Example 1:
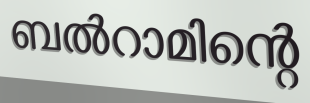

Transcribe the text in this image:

ബൽറാമിന്റെ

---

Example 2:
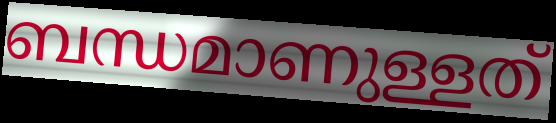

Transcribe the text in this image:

ബന്ധമാണുള്ളത്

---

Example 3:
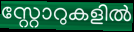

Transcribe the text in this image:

സ്റ്റോറുകളിൽ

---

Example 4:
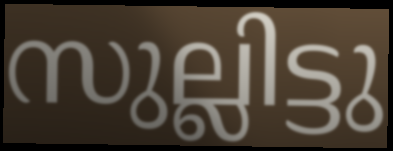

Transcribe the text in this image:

സുല്ലിട്ടു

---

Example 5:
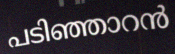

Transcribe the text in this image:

പടിഞ്ഞാറൻ